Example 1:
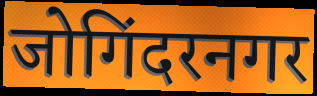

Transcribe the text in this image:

जोगिंदरनगर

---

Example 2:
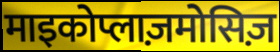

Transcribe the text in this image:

माइकोप्लाज़मोसिज़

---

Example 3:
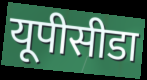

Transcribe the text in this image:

यूपीसीडा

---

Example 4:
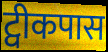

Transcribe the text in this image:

ट्वीकपास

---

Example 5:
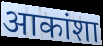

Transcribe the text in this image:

आकांशा